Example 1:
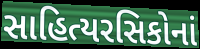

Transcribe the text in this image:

સાહિત્યરસિકોનાં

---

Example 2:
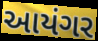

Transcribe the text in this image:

આયંગર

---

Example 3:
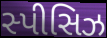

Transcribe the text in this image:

સ્પીસિઝ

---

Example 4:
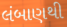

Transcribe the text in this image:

લંબાણથી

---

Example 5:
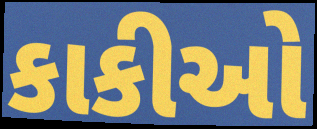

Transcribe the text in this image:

કાકીઓ